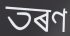
তৰণ